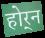
होर्न